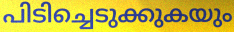
പിടിച്ചെടുക്കുകയും